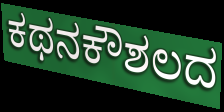
ಕಥನಕೌಶಲದ